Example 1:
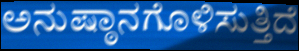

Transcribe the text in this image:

ಅನುಷ್ಠಾನಗೊಳಿಸುತ್ತಿದೆ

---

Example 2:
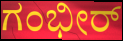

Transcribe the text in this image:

ಗಂಭೀರ್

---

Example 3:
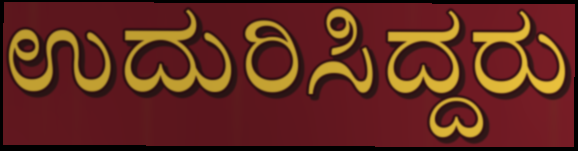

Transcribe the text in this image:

ಉದುರಿಸಿದ್ದರು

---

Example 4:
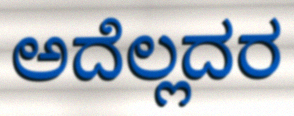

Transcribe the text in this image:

ಅದೆಲ್ಲದರ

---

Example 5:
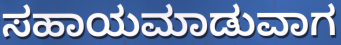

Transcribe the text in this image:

ಸಹಾಯಮಾಡುವಾಗ